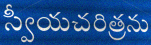
స్వీయచరిత్రను